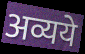
अव्यये